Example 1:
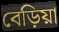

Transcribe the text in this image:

বেড়িয়া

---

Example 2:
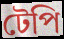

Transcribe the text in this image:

টেপি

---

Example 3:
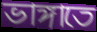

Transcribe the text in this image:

ভাঙ্গাতে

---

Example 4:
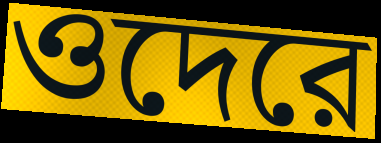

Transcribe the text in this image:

ওদেরে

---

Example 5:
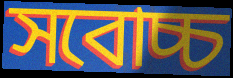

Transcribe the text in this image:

সবোচ্চ